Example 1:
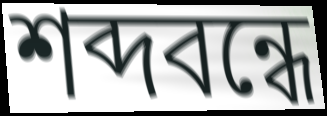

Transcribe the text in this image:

শব্দবন্ধে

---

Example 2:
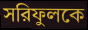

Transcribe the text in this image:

সরিফুলকে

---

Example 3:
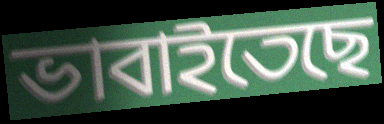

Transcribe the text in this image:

ভাবাইতেছে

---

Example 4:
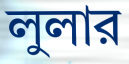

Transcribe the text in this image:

লুলার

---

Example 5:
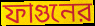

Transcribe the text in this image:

ফাগুনের